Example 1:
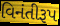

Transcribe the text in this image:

વિનંતીરૂપ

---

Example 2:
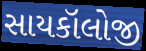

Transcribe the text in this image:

સાયકૉલોજી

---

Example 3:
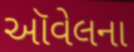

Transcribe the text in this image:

ઑવેલના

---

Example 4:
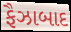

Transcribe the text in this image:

ફૈઝાબાદ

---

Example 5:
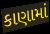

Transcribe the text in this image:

કાણામાં